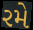
રમે